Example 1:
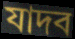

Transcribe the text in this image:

যাদব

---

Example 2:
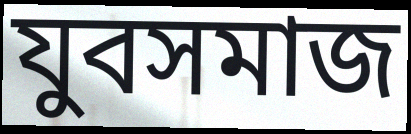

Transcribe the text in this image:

যুবসমাজ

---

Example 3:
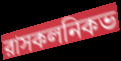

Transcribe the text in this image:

রাসকলনিকভ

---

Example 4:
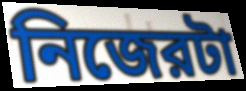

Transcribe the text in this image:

নিজেরটা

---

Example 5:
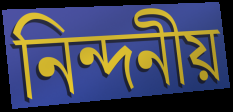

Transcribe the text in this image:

নিন্দনীয়